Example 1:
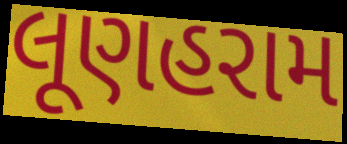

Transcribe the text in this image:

લૂણહરામ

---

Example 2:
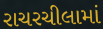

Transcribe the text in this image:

રાચરચીલામાં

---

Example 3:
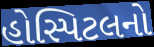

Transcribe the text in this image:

હોસ્પિટલનો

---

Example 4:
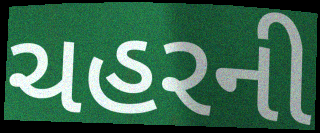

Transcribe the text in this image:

ચહરની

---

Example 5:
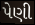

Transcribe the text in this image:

પેણી